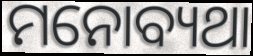
ମନୋବ୍ୟଥା